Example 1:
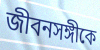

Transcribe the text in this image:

জীবনসঙ্গীকে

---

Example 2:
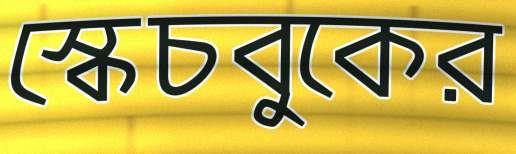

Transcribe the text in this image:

স্কেচবুকের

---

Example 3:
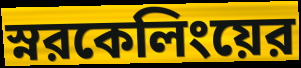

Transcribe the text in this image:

স্নরকেলিংয়ের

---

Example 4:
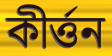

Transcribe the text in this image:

কীর্ত্তন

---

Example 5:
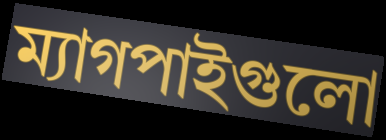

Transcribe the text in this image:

ম্যাগপাইগুলো